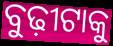
ବୁଢ଼ୀଟାକୁ